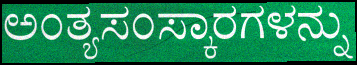
ಅಂತ್ಯಸಂಸ್ಕಾರಗಳನ್ನು